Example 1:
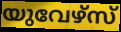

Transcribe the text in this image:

യുവേഴ്സ്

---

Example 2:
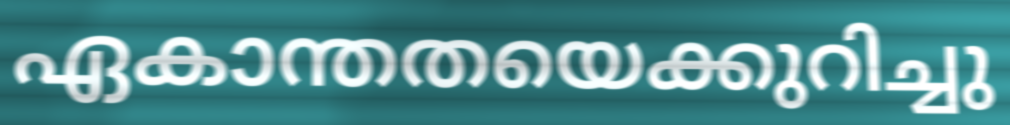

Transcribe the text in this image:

ഏകാന്തതയെക്കുറിച്ചു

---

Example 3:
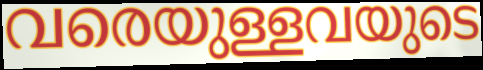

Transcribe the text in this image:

വരെയുള്ളവയുടെ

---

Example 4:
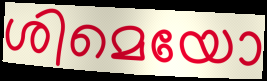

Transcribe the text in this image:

ശിമെയോ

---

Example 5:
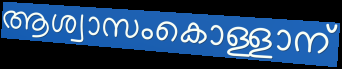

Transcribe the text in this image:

ആശ്വാസംകൊള്ളാന്